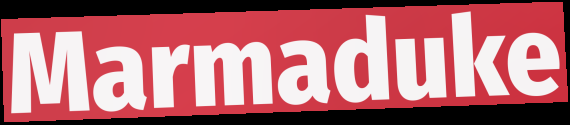
Marmaduke